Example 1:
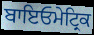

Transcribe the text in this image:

ਬਾਇਓਮੇਟ੍ਰਿਕ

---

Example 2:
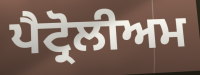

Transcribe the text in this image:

ਪੈਟ੍ਰੋਲੀਅਮ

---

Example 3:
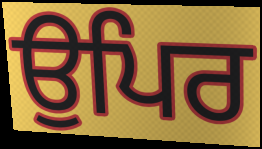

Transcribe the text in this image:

ਉਪਿਰ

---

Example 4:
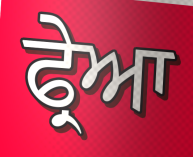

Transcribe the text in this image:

ਫ੍ਰੇਆ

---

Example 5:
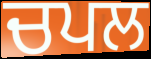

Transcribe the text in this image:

ਚਪਲ